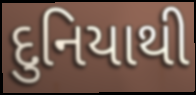
દુનિયાથી